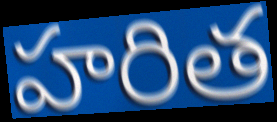
హరిత